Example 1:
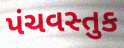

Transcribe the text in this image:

પંચવસ્તુક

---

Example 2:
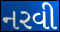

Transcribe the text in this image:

નરવી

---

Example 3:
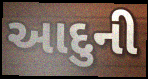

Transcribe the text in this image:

આદુની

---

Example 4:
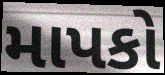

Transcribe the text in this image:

માપકો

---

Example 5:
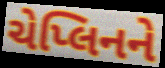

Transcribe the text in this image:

ચેપ્લિનને